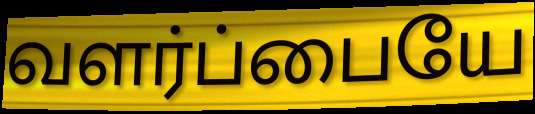
வளர்ப்பையே